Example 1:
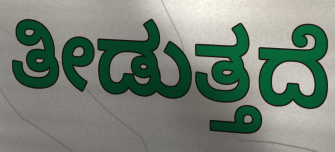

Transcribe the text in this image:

ತೀಡುತ್ತದೆ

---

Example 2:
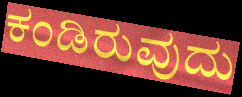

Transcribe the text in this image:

ಕಂಡಿರುವುದು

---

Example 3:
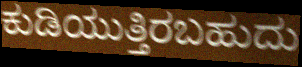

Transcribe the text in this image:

ಕುಡಿಯುತ್ತಿರಬಹುದು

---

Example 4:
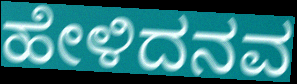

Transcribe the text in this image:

ಹೇಳಿದನವ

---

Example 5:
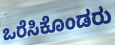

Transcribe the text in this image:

ಒರೆಸಿಕೊಂಡರು